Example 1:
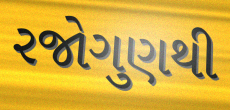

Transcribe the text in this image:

રજોગુણથી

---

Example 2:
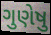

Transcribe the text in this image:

ગુણેષુ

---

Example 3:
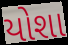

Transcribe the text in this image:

યોશા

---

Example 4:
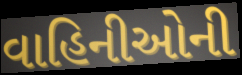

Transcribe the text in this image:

વાહિનીઓની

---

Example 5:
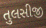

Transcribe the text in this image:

તુલસીજી